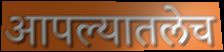
आपल्यातलेच